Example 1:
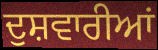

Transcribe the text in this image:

ਦੁਸ਼ਵਾਰੀਆਂ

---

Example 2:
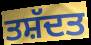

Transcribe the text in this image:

ਤਸ਼ੱਦਤ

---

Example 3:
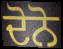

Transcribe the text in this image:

ਦੋਨੋ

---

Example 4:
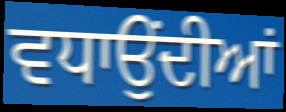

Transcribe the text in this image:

ਵਧਾਉਂਦੀਆਂ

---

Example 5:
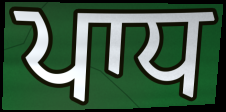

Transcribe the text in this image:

ਪਾਧ